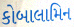
કોબાલામિન